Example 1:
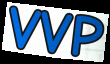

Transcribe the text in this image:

VVP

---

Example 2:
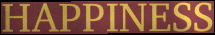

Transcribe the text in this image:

HAPPINESS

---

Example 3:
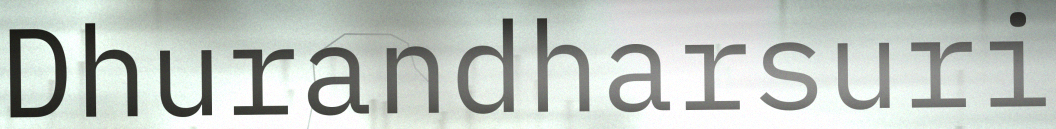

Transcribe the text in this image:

Dhurandharsuri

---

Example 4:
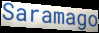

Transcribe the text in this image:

Saramago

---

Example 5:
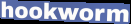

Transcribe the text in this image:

hookworm